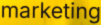
marketing